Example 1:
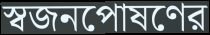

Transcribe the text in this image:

স্বজনপোষণের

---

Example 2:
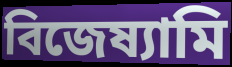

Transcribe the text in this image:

বিজেষ্যামি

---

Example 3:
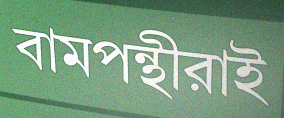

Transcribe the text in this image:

বামপন্থীরাই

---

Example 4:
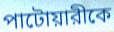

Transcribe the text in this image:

পাটোয়ারীকে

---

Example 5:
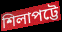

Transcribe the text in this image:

শিলাপট্টে